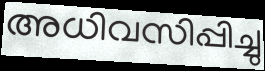
അധിവസിപ്പിച്ചു